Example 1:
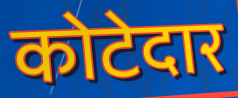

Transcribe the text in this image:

कोटेदार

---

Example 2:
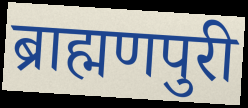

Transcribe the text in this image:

ब्राह्मणपुरी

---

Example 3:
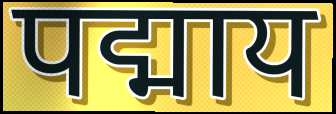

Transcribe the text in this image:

पद्माय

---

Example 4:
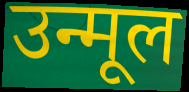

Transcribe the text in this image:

उन्मूल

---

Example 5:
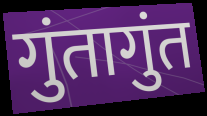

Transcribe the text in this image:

गुंतागुंत